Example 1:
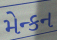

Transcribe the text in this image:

મેન્કન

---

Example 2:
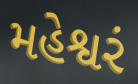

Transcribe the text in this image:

મહેશ્વરં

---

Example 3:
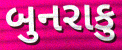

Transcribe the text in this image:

બુનરાકુ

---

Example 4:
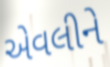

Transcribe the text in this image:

એવલીને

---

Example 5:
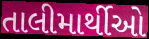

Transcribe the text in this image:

તાલીમાર્થીઓ